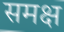
समक्ष